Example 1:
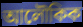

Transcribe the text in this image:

আলৌকিক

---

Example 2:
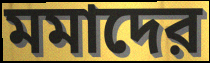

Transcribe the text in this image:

মমাদের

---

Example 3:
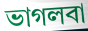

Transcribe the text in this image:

ভাগলবা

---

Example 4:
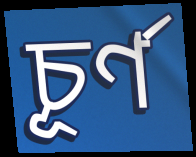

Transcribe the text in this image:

চূর্ণ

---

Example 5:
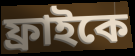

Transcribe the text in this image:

ফ্রাইকে